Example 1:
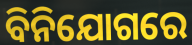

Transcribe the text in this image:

ବିନିଯୋଗରେ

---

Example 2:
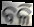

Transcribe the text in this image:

ବଳି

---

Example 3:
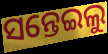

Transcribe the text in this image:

ସନ୍ତେଇଲୁ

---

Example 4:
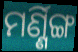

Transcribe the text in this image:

ମର୍ଣ୍ଣିଙ୍ଗ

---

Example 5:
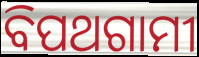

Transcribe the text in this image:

ବିପଥଗାମୀ